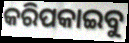
କରିପକାଇବୁ